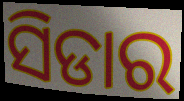
ସିଡାର